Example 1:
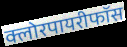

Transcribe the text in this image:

क्लोरपायरीफॉस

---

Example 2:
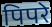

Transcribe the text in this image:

पिपरे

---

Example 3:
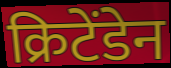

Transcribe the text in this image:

क्रिटेंडेन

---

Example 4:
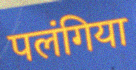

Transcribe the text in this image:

पलंगिया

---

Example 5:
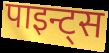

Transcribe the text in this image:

पाइन्ट्स